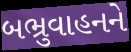
બભ્રુવાહનને